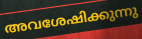
അവശേഷിക്കുന്നു